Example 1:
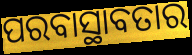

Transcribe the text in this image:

ପରବାସ୍ଥାବତାର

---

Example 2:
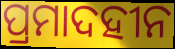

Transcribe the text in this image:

ପ୍ରମାଦହୀନ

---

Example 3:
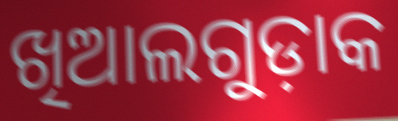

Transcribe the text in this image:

ଖିଆଲଗୁଡ଼ାକ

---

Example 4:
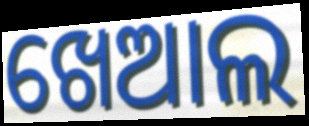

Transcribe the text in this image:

ଖେଆଲ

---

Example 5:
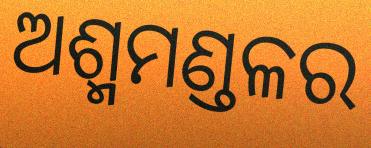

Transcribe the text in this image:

ଅଶ୍ମମଣ୍ଡଳର